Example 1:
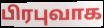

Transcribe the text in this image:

பிரபுவாக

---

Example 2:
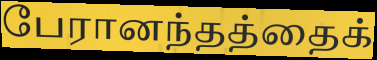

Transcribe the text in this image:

பேரானந்தத்தைக்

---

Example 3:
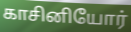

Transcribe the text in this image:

காசினியோர்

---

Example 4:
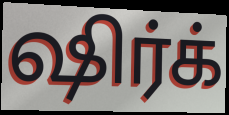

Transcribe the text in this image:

ஷிர்க்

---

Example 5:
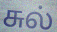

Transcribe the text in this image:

சுல்